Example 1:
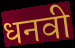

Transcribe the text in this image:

धनवी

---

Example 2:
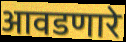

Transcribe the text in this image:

आवडणारे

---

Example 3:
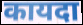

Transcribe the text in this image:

कायदा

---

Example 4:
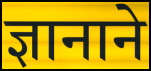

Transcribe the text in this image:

ज्ञानाने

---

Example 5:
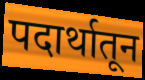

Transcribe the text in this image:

पदार्थातून